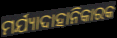
ମର୍ଯ୍ୟାଦାହାନିକାରକ